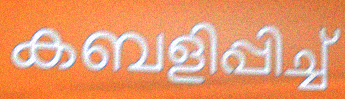
കബളിപ്പിച്ച്